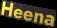
Heena